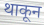
थाकून